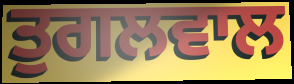
ਤੁਗਲਵਾਲ